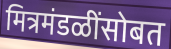
मित्रमंडळींसोबत